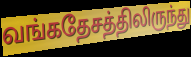
வங்கதேசத்திலிருந்து